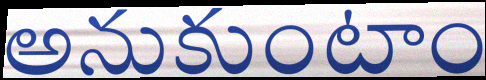
అనుకుంటాం